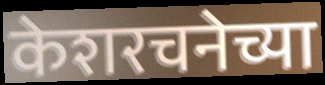
केशरचनेच्या